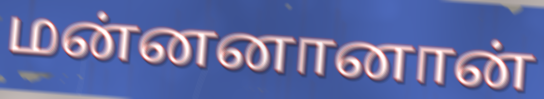
மன்னனானான்